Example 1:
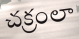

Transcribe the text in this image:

చక్రంలా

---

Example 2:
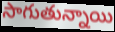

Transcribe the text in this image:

సాగుతున్నాయి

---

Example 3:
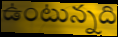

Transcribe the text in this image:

ఉంటున్నది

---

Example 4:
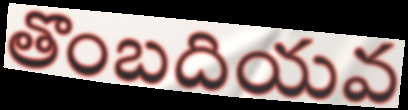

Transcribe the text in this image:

తొంబదియవ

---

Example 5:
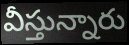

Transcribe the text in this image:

వీస్తున్నారు